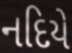
નદિયે